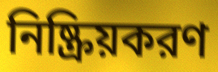
নিষ্ক্রিয়করণ